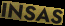
INSAS